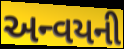
અન્વયની